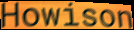
Howison